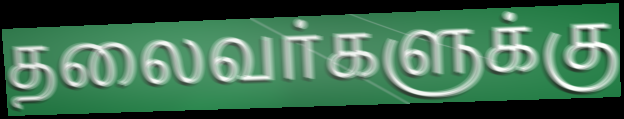
தலைவர்களுக்கு